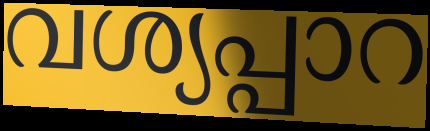
വശ്യപ്പാറ